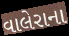
વાલેરાના